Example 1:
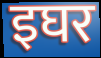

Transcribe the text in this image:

इघर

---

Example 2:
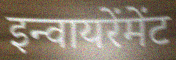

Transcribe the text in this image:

इन्वायरेंमेंट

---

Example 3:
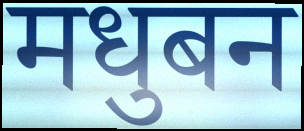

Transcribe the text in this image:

मधुबन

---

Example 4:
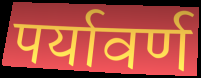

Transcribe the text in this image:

पर्यावर्ण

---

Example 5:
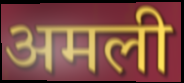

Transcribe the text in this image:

अमली